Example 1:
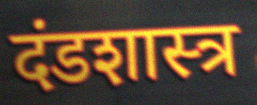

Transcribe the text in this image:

दंडशास्त्र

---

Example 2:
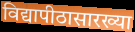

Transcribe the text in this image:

विद्यापीठासारख्या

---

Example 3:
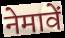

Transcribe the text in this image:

नेमावें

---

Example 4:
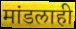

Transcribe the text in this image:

मांडलाही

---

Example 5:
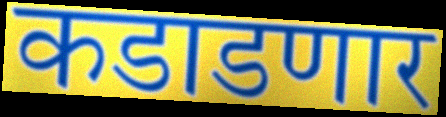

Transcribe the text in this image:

कडाडणार